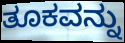
ತೂಕವನ್ನು